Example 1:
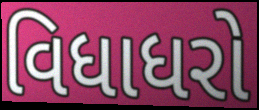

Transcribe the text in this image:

વિધાધરો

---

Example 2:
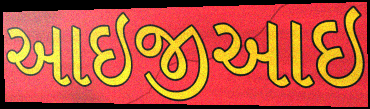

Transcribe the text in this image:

આઇજીઆઇ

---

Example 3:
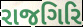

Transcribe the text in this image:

રાજગિરિ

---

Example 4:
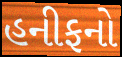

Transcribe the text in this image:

હનીફનો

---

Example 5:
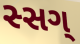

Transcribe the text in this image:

સ્સગ્